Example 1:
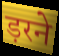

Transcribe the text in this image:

ड़रने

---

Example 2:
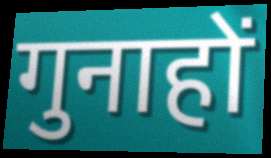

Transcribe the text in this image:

गुनाहों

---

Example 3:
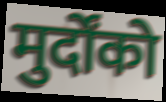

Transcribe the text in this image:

मुर्दोंको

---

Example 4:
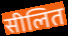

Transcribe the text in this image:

सीलित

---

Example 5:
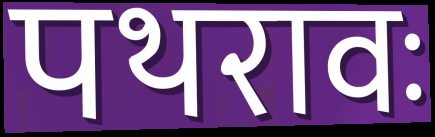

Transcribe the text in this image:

पथरावः